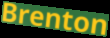
Brenton